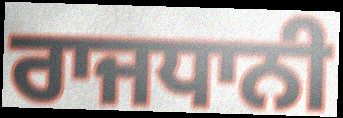
ਰਾਜਧਾਨੀ